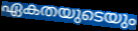
ഏകതയുടെയും